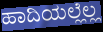
ಹಾದಿಯಲ್ಲೆಲ್ಲ